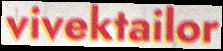
vivektailor